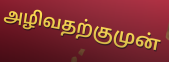
அழிவதற்குமுன்